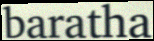
baratha